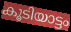
കൂടിയാട്ടം